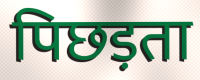
पिछड़ता